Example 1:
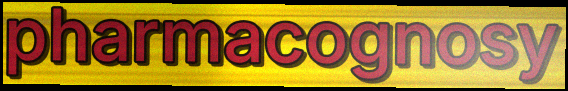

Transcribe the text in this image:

pharmacognosy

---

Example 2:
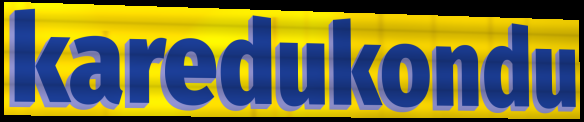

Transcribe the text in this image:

karedukondu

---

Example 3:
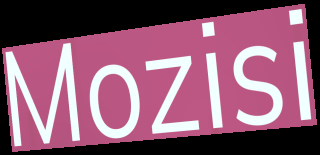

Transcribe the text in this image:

Mozisi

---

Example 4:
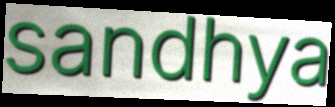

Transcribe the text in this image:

sandhya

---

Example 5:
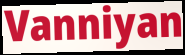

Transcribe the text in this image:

Vanniyan